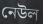
নেউল